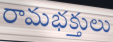
రామభక్తులు